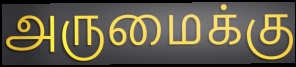
அருமைக்கு